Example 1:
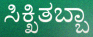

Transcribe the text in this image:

ಸಿಕ್ಖಿತಬ್ಬಾ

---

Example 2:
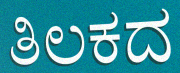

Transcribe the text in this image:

ತಿಲಕದ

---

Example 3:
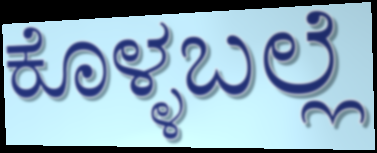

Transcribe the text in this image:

ಕೊಳ್ಳಬಲ್ಲೆ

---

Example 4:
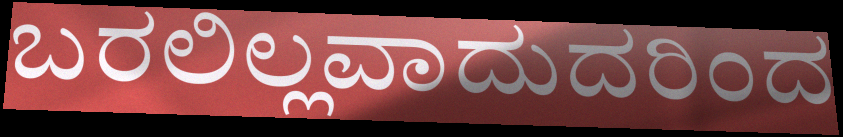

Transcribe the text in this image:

ಬರಲಿಲ್ಲವಾದುದರಿಂದ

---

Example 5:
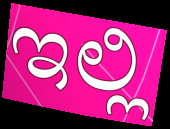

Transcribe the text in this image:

ಇಲ್ಲಿ